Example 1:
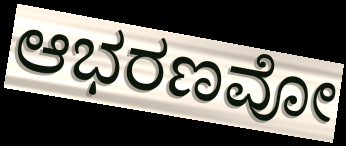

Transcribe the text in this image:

ಆಭರಣವೋ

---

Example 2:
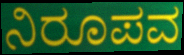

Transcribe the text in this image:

ನಿರೂಪವ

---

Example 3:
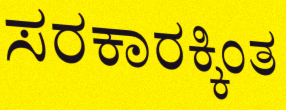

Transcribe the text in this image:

ಸರಕಾರಕ್ಕಿಂತ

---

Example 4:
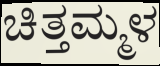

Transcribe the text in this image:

ಚಿತ್ತಮ್ಮಳ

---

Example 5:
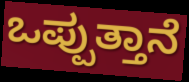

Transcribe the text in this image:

ಒಪ್ಪುತ್ತಾನೆ